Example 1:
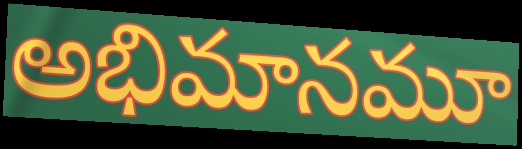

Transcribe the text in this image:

అభిమానమూ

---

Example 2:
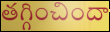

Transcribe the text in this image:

తగ్గించిందా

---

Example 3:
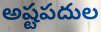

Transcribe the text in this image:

అష్టపదుల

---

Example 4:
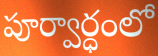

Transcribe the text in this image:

పూర్వార్ధంలో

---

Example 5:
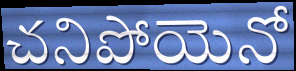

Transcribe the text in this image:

చనిపోయెనో